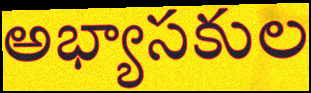
అభ్యాసకుల